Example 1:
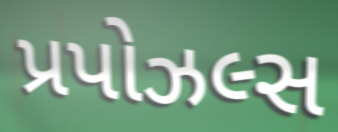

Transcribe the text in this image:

પ્રપોઝલ્સ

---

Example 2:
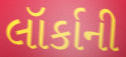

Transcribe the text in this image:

લૉર્કાની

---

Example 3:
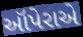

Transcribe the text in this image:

ઑપેરાએ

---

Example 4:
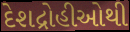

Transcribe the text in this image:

દેશદ્રોહીઓથી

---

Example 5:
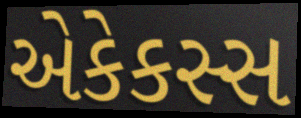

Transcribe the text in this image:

એકેકસ્સ